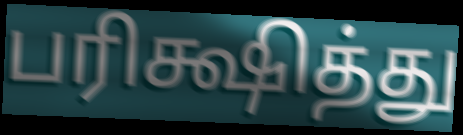
பரிக்ஷித்து